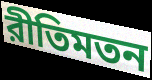
রীতিমতন